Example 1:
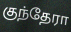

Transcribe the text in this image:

குந்தேரா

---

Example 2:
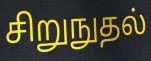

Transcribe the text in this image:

சிறுநுதல்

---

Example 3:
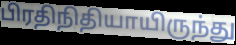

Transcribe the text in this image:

பிரதிநிதியாயிருந்து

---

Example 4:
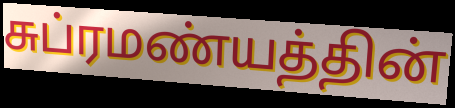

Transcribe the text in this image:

சுப்ரமண்யத்தின்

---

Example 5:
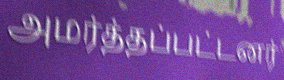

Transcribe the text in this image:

அமர்த்தப்பட்டனர்